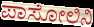
ಪಾಸೋಲಿನಿ